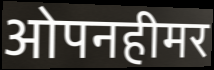
ओपनहीमर